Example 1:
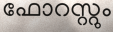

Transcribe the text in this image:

ഫോറസ്റ്റും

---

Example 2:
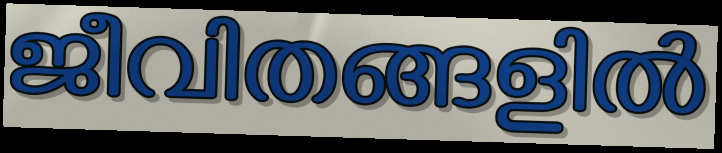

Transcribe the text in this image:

ജീവിതങ്ങളിൽ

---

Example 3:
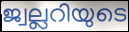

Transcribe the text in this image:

ജ്വല്ലറിയുടെ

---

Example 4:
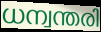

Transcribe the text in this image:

ധന്വന്തരി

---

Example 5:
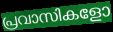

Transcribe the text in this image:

പ്രവാസികളോ